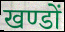
खण्डों